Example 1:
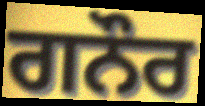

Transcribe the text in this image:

ਗਨੌਰ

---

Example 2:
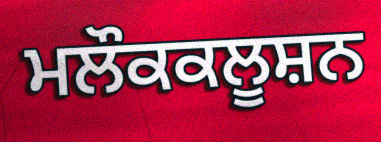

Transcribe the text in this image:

ਮਲੌਕਕਲੂਸ਼ਨ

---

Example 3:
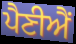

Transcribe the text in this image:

ਪੈਣੀਐਂ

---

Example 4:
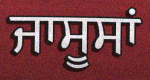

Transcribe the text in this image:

ਜਾਸੂਸਾਂ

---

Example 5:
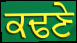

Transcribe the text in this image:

ਕਢਣੇ